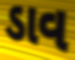
ડાવ